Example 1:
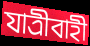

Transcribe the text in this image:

যাত্রীবাহী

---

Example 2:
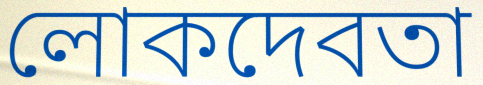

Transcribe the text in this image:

লোকদেবতা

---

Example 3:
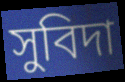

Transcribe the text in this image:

সুবিদা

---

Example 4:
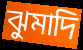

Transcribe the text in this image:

ঝুমাদি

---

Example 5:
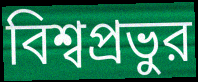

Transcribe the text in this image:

বিশ্বপ্রভুর